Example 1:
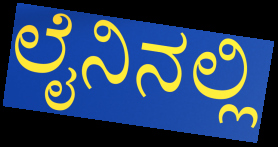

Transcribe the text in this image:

ಲೈನಿನಲ್ಲಿ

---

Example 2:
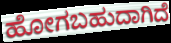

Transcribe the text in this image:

ಹೋಗಬಹುದಾಗಿದೆ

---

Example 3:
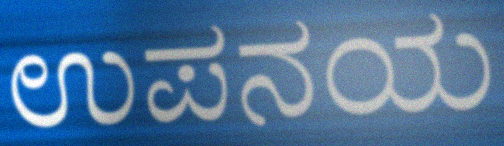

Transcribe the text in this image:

ಉಪನಯ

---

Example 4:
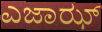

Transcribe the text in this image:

ಎಜಾಝ್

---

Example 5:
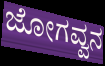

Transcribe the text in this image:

ಜೋಗವ್ವನ